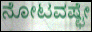
ನೋಟವಷ್ಟೇ